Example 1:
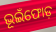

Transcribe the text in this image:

ଭୂଇଁଫୋଡ଼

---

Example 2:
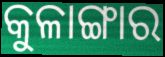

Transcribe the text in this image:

କୁଳାଙ୍ଗାର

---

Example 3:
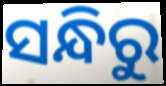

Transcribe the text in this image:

ସନ୍ଧିରୁ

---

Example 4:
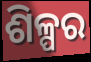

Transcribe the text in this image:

ଶିଳ୍ପର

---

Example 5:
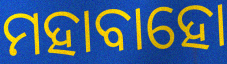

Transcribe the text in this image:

ମହାବାହୋ